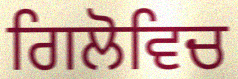
ਗਿਲੋਵਿਚ